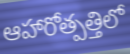
ఆహారోత్పత్తిలో